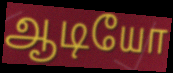
ஆடியோ